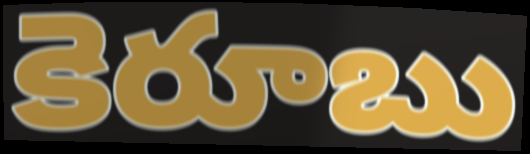
కెరూబు